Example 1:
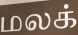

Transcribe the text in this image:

மலக்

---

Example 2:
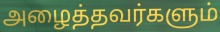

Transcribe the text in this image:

அழைத்தவர்களும்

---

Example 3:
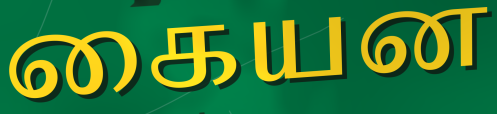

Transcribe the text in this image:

கையன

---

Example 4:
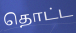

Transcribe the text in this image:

தொட்ட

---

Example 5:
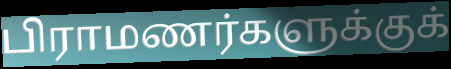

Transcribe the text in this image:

பிராமணர்களுக்குக்